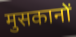
मुसकानों